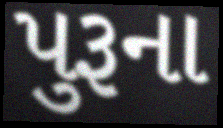
પુરૂના